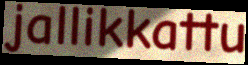
jallikkattu